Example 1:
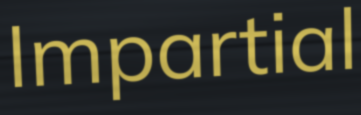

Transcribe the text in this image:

Impartial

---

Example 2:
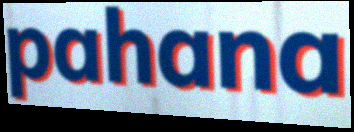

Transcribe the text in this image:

pahana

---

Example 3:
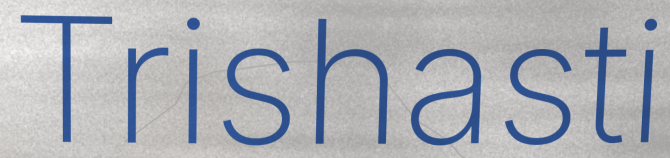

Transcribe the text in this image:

Trishasti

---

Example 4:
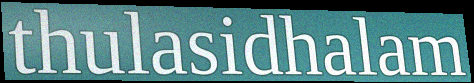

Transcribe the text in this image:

thulasidhalam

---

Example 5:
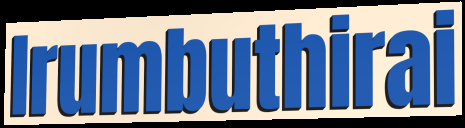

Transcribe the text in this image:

Irumbuthirai